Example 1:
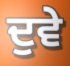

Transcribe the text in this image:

ਦੁਵੇ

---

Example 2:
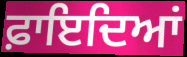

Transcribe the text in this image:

ਫ਼ਾਇਦਿਆਂ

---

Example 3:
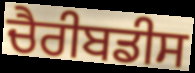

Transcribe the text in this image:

ਚੈਰੀਬਡੀਸ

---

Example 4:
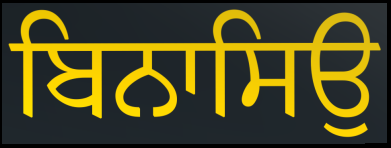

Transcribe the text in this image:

ਬਿਨਾਸਿਉ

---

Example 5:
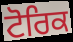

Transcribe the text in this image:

ਟੋਰਿਕ